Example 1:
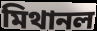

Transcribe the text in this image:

মিথানল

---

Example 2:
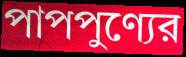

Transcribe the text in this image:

পাপপুণ্যের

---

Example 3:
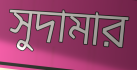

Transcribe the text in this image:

সুদামার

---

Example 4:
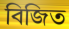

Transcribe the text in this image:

বিজিত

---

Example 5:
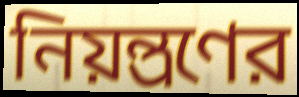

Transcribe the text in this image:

নিয়ন্ত্রণের